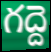
గద్దె